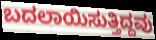
ಬದಲಾಯಿಸುತ್ತಿದ್ದವು